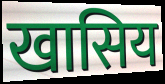
खासिय